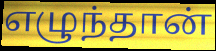
எழுந்தான்